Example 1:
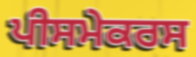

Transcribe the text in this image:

ਪੀਸਮੇਕਰਸ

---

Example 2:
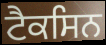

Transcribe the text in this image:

ਟੈਕਸਿਨ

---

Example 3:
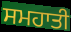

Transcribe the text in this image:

ਸਮਹਾਤੀ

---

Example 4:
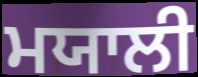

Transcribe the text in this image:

ਮਯਾਲੀ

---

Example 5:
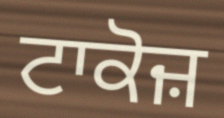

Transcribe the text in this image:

ਟਾਕੋਜ਼